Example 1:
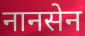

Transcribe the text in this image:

नानसेन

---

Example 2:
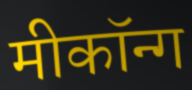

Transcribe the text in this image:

मीकॉन्ग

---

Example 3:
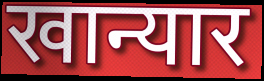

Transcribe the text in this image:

खान्यार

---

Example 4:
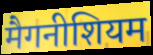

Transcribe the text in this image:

मैगनीशियम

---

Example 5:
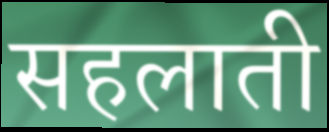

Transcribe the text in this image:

सहलाती